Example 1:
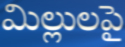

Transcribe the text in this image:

మిల్లులపై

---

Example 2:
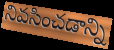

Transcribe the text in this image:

నివసించడాన్ని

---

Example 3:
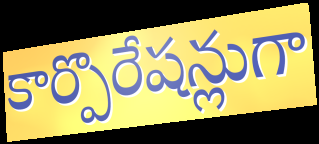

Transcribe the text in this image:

కార్పొరేషన్లుగా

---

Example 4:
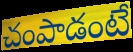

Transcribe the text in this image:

చంపాడంటే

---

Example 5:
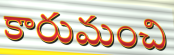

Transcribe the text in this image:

కారుమంచి